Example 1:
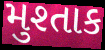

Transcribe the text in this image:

મુશ્તાક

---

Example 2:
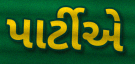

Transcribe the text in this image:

પાર્ટીએ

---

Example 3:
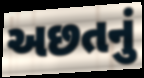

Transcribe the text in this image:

અછતનું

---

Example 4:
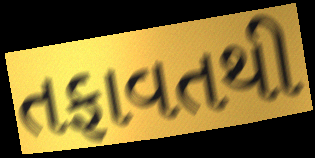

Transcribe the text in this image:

તફાવતથી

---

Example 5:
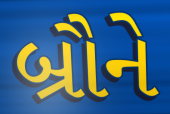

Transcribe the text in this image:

બ્રૌને